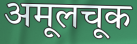
अमूलचूक